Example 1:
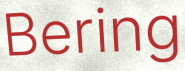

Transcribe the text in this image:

Bering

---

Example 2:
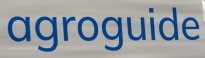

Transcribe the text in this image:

agroguide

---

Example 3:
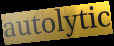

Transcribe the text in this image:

autolytic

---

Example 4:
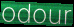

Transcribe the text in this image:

odour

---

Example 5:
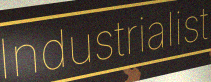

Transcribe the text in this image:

Industrialist